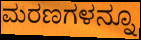
ಮರಣಗಳನ್ನೂ